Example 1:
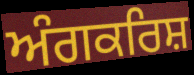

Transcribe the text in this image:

ਅੰਗਕਰਿਸ਼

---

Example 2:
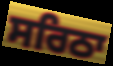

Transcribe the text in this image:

ਸਰਿਠਾ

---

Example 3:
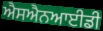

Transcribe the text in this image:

ਐਸਐਨਆਈਡੀ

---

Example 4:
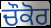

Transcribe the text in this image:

ਚੌਕੋਰ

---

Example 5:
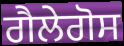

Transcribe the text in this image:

ਗੈਲੇਗੋਸ